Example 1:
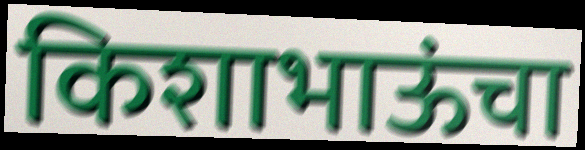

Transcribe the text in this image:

किशाभाऊंचा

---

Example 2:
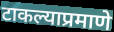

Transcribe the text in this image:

टाकल्याप्रमाणे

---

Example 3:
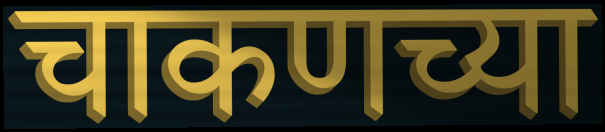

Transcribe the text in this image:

चाकणच्या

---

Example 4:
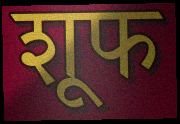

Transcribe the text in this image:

शूफ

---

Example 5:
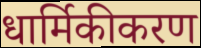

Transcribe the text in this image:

धार्मिकीकरण